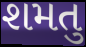
શમતુ